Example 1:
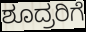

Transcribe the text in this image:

ಶೂದ್ರರಿಗೆ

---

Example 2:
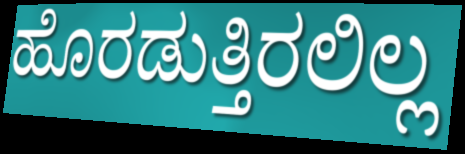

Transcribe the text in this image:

ಹೊರಡುತ್ತಿರಲಿಲ್ಲ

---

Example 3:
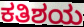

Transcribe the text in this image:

ಕತಿಶಯ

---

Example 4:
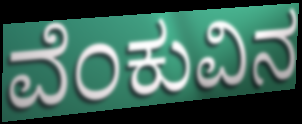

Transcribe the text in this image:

ವೆಂಕುವಿನ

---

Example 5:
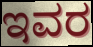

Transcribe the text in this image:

ಇವರ